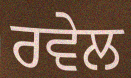
ਰਵੇਲ